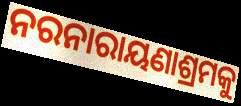
ନରନାରାୟଣାଶ୍ରମକୁ